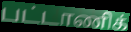
பட்டாணிக்